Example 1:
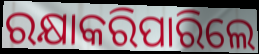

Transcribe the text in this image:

ରକ୍ଷାକରିପାରିଲେ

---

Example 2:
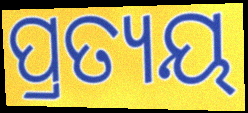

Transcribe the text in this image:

ପ୍ରତ୍ଯୟ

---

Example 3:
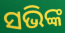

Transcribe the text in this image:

ସଭିଙ୍କ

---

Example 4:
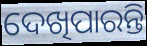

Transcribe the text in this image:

ଦେଖିପାରନ୍ତି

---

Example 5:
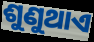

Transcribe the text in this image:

ଶୁଣୁଥାଏ